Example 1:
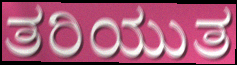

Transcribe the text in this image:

ತರಿಯುತ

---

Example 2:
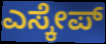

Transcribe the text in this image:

ಎಸ್ಕೇಪ್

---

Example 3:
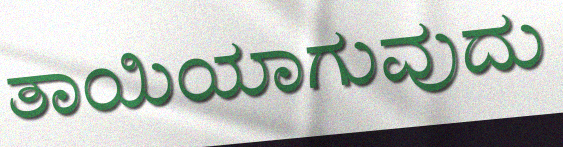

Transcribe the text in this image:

ತಾಯಿಯಾಗುವುದು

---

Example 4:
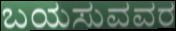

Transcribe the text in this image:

ಬಯಸುವವರ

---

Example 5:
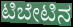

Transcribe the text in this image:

ಟಿಬೇಟಿನ